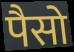
पैसो